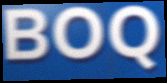
BOQ